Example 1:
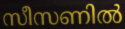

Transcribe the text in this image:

സീസണിൽ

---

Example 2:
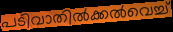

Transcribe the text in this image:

പടിവാതിൽക്കൽവെച്ച്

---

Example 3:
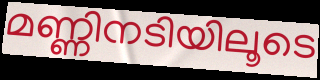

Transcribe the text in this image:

മണ്ണിനടിയിലൂടെ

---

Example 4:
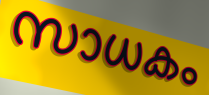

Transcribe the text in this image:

സാധകം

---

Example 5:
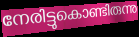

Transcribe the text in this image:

നേരിട്ടുകൊണ്ടിരുന്നു